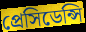
প্রেসিডেন্সি